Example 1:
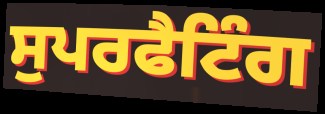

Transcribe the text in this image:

ਸੁਪਰਫੈਟਿੰਗ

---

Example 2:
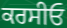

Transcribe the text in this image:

ਕਰਸੀਓ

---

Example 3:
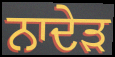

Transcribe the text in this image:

ਨਾਦੇੜ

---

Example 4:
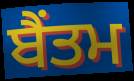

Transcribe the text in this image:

ਬੈਂਤਮ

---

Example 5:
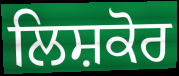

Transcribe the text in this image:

ਲਿਸ਼ਕੋਰ